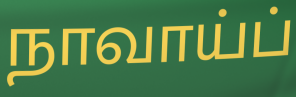
நாவாய்ப்